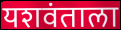
यशवंताला